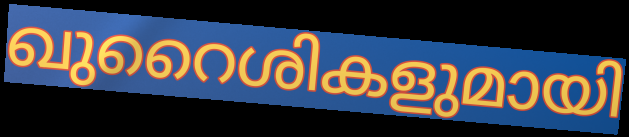
ഖുറൈശികളുമായി